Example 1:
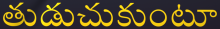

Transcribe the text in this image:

తుడుచుకుంటూ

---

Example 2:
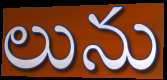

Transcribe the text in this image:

లును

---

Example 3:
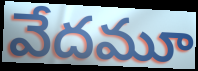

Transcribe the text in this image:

వేదమూ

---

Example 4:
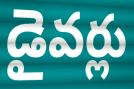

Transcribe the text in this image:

డైవర్లు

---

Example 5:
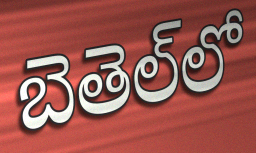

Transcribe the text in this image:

బెతెల్‌లో